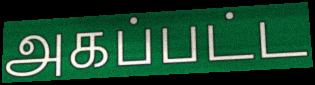
அகப்பட்ட